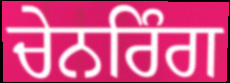
ਚੇਨਰਿੰਗ